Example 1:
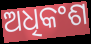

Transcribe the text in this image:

ଅଧିକଂଶ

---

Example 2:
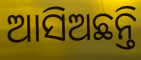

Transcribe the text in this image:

ଆସିଅଛନ୍ତି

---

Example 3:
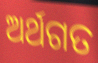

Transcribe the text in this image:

ଅର୍ଥଗତ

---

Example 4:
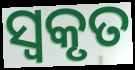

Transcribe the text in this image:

ସ୍ୱକୃତ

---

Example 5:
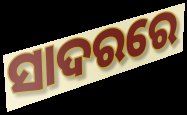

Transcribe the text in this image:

ସାଦରରେ